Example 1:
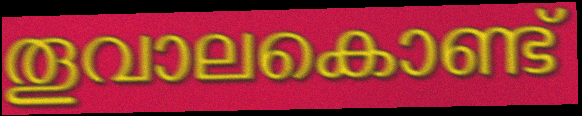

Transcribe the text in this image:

തൂവാലകൊണ്ട്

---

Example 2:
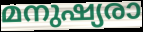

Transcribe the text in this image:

മനുഷ്യരാ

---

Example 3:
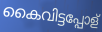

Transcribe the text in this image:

കൈവിട്ടപ്പോള്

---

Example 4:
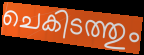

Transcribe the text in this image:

ചെകിടത്തും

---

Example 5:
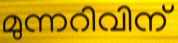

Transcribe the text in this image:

മുന്നറിവിന്